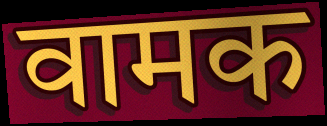
वामक